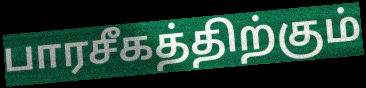
பாரசீகத்திற்கும்